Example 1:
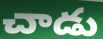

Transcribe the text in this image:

చాడు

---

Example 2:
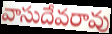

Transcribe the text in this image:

వాసుదేవరావు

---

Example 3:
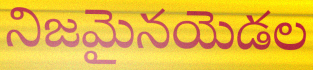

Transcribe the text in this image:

నిజమైనయెడల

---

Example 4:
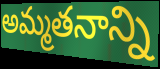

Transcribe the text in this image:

అమ్మతనాన్ని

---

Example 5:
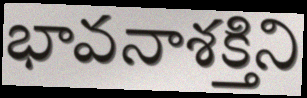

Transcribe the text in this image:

భావనాశక్తిని